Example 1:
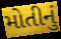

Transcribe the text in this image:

મોતીનું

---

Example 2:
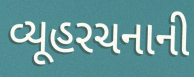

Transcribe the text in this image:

વ્યૂહરચનાની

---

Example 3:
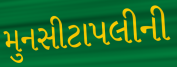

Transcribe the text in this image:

મુનસીટાપલીની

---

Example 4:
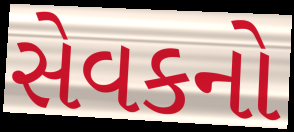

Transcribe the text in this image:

સેવકનો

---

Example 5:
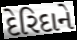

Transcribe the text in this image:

દેરિદાને